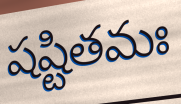
షష్టితమః